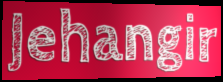
Jehangir